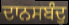
ਦਾਨਸਬੰਦੁ